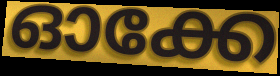
ഓക്കേ